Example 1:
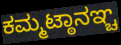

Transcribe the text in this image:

ಕಮ್ಮಟ್ಠಾನಞ್ಚ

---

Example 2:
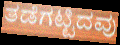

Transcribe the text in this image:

ತಡೆಗಟ್ಟಿದವು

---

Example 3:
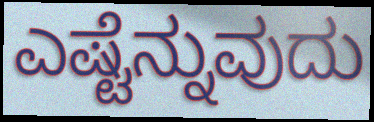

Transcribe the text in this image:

ಎಷ್ಟೆನ್ನುವುದು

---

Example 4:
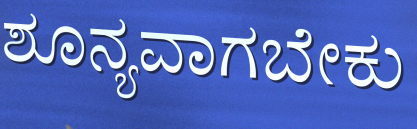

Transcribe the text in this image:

ಶೂನ್ಯವಾಗಬೇಕು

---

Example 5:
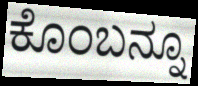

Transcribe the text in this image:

ಕೊಂಬನ್ನೂ